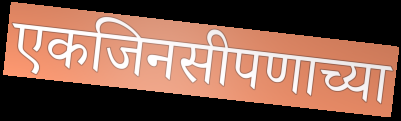
एकजिनसीपणाच्या